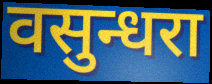
वसुन्धरा